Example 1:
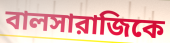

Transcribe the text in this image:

বালসারাজিকে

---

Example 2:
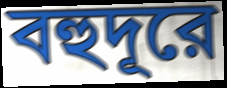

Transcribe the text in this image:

বহুদূরে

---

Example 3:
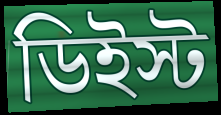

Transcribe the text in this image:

ডিইস্ট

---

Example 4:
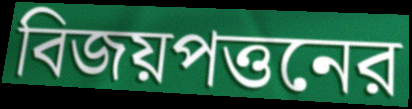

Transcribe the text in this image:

বিজয়পত্তনের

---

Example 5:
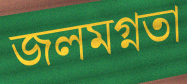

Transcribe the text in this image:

জলমগ্নতা